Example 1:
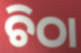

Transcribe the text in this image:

ଚିଠା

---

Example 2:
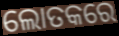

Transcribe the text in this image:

ଲୋତକରେ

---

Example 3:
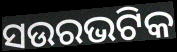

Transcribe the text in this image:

ସଉରଭଟିକ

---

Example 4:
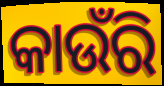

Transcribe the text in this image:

କାଉଁରି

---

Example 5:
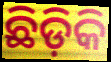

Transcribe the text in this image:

ଛିଡ଼ିକି